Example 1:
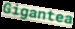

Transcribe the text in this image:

Gigantea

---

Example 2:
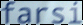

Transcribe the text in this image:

farsi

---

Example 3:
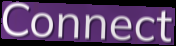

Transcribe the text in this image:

Connect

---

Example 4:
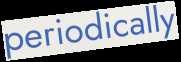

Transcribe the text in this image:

periodically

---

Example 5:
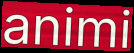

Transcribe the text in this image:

animi